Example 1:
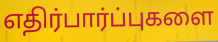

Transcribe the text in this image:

எதிர்பார்ப்புகளை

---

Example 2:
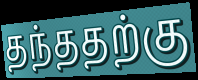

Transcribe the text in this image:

தந்ததற்கு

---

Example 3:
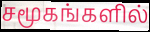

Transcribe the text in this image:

சமூகங்களில்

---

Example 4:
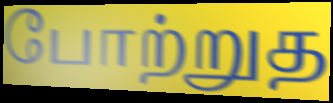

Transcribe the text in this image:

போற்றுத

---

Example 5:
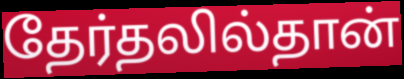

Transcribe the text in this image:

தேர்தலில்தான்